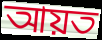
আয়ত